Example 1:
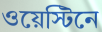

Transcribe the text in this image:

ওয়েস্টিনে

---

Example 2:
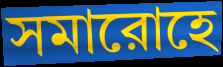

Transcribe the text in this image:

সমারোহে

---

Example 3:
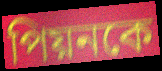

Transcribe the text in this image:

পিয়নকে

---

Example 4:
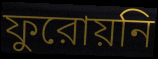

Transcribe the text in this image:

ফুরোয়নি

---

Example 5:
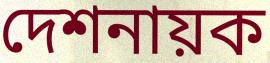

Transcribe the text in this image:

দেশনায়ক